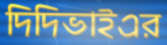
দিদিভাইএর